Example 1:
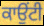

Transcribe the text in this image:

ਕਾਉਂਟੀ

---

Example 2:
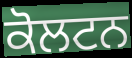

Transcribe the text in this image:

ਕੋਲਟਨ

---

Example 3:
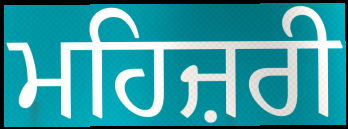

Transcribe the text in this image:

ਮਹਿਜ਼ਰੀ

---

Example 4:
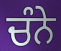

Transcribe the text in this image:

ਚੰਨੇ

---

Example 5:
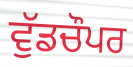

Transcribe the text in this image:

ਵੁੱਡਚੌਪਰ